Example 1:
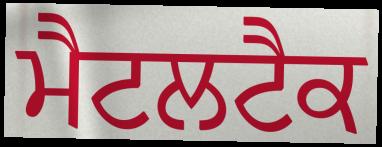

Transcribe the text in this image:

ਮੈਟਲਟੈਕ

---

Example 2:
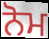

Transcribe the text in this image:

ਨੋਮ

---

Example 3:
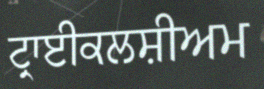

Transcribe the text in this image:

ਟ੍ਰਾਈਕਲਸ਼ੀਅਮ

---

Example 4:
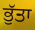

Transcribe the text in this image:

ਭੁੱਤਾ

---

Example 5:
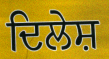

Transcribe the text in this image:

ਦਿਲੇਸ਼